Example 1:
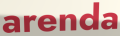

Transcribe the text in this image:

arenda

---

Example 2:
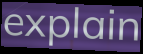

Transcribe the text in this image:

explain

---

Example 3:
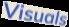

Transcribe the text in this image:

Visuals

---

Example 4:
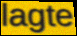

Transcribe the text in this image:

lagte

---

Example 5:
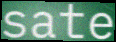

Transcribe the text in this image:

sate